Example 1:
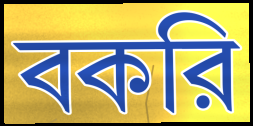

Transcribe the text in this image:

বকরি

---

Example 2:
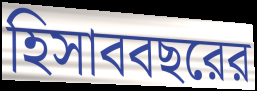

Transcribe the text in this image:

হিসাববছরের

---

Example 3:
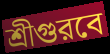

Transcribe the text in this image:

শ্রীগুরবে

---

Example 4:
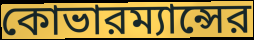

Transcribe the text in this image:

কোভারম্যান্সের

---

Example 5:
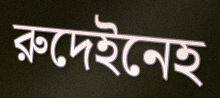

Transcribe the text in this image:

রুদেইনেহ